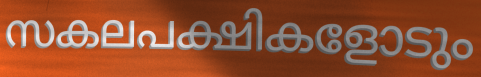
സകലപക്ഷികളോടും